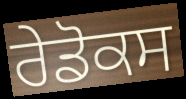
ਰੇਡੋਕਸ